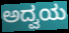
ಅದ್ವಯ